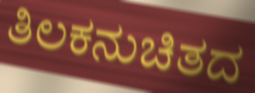
ತಿಲಕನುಚಿತದ